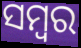
ସମ୍ବର